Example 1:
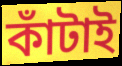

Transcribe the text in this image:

কাঁটাই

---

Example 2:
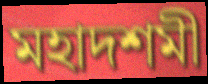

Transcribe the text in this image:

মহাদশমী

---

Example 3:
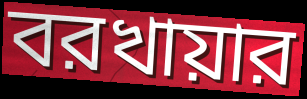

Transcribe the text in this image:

বরখায়ার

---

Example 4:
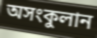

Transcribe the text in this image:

অসংকুলান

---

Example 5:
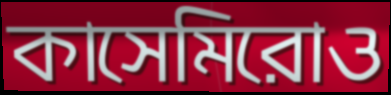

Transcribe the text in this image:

কাসেমিরোও